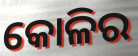
କୋଳିର